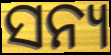
ସନ୍ୟ